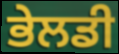
ਭੇਲਡੀ